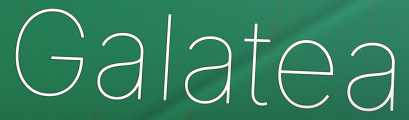
Galatea